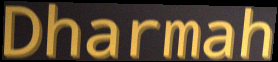
Dharmah